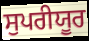
ਸੁਪਰੀਯੂਰ